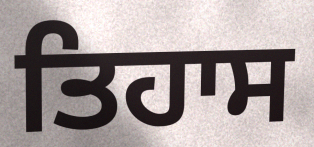
ਤਿਹਾਸ